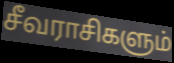
சீவராசிகளும்